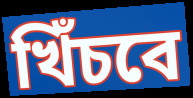
খিঁচবে